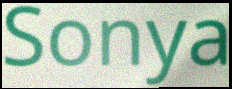
Sonya